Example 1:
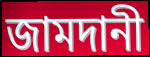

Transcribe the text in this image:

জামদানী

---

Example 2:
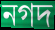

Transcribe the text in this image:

নগদ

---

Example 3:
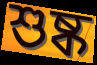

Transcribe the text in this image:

শুষ্ক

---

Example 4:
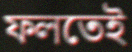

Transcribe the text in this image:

ফলতেই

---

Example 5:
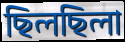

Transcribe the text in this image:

ছিলছিলা